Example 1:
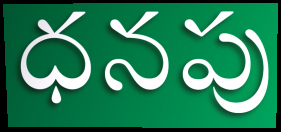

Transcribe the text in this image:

ధనపు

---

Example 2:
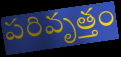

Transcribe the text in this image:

పరివృత్తం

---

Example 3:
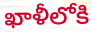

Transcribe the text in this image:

ఖాళీలోకి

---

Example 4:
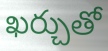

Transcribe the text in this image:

ఖర్చుతో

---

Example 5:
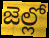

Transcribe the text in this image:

జెల్లో